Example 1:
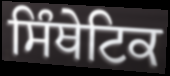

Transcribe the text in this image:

ਸਿੰਥੇਟਿਕ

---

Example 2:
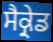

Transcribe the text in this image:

ਸੈਕ੍ਰੇਡ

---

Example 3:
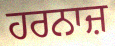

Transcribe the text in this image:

ਹਰਨਾਜ਼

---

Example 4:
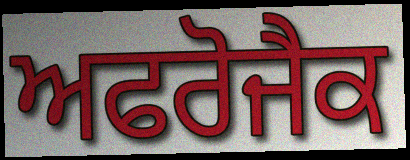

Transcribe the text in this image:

ਅਫਰੋਜੈਕ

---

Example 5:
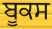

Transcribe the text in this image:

ਬੂਕਸ